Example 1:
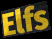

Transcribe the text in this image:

Elfs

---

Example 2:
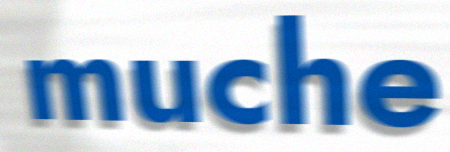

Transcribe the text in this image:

muche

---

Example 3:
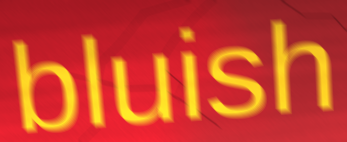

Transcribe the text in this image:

bluish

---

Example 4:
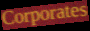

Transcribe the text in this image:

Corporates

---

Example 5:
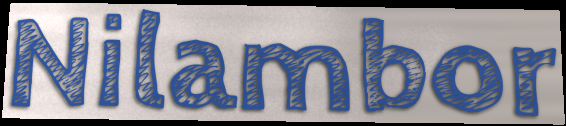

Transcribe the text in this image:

Nilambor